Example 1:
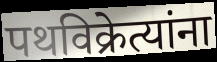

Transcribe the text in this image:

पथविक्रेत्यांना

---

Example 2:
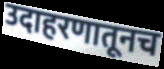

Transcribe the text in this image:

उदाहरणातूनच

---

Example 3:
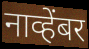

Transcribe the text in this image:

नाव्हेंबर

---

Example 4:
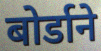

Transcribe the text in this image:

बोर्डाने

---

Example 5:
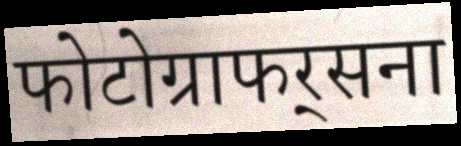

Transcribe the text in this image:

फोटोग्राफर्सना